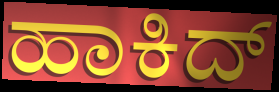
ಹಾಕಿದ್